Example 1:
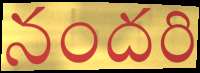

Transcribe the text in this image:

నందరి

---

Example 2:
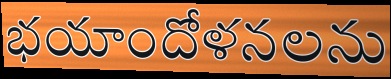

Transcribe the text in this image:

భయాందోళనలను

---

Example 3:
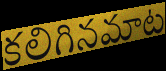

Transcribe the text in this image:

కలిగినమాట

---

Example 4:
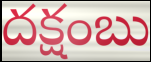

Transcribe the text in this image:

దక్షంబు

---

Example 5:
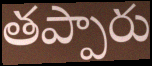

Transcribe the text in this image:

తప్పారు